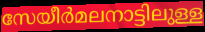
സേയീർമലനാട്ടിലുള്ള